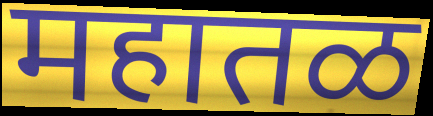
महातळ